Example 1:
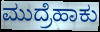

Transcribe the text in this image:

ಮುದ್ರೆಹಾಕು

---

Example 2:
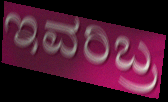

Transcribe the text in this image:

ಇವರಿಬ್ರ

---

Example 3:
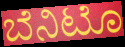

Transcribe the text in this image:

ಬೆನಿಟೊ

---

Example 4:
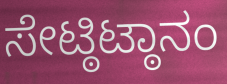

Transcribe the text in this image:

ಸೇಟ್ಠಿಟ್ಠಾನಂ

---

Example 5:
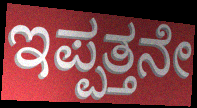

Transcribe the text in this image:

ಇಪ್ಪತ್ತನೇ